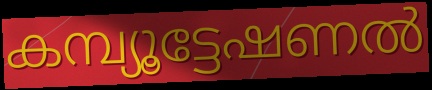
കമ്പ്യൂട്ടേഷണൽ